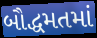
બૌદ્ધમતમાં